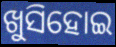
ଖୁସିହୋଇ